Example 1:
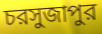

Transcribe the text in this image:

চরসুজাপুর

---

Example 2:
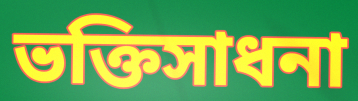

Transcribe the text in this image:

ভক্তিসাধনা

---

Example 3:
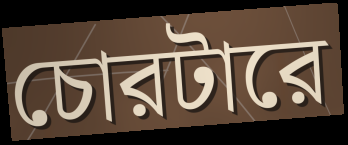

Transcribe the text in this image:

চোরটারে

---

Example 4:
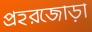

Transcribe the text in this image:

প্রহরজোড়া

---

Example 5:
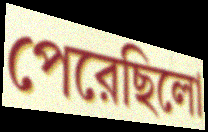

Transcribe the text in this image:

পেরেছিলো